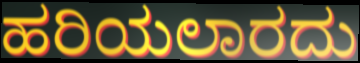
ಹರಿಯಲಾರದು